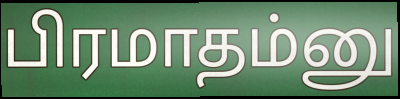
பிரமாதம்னு